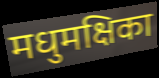
मधुमक्षिका